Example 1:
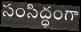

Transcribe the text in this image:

సంసిద్ధంగా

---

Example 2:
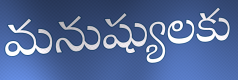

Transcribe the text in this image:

మనుష్యులకు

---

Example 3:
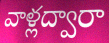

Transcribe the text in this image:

వాళ్లద్వారా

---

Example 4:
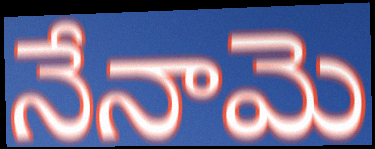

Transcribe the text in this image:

నేనామె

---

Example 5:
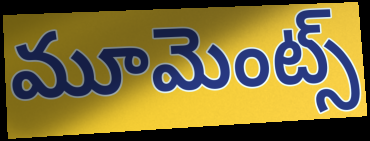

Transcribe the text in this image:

మూమెంట్స్